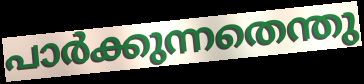
പാർക്കുന്നതെന്തു